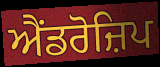
ਐਂਡਰੋਜ਼ਿਪ